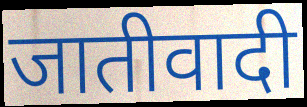
जातीवादी